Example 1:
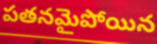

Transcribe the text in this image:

పతనమైపోయిన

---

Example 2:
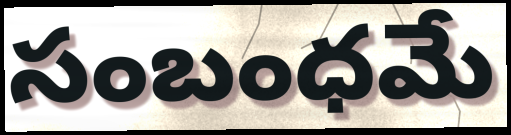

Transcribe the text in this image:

సంబంధమే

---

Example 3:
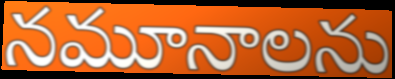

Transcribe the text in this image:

నమూనాలను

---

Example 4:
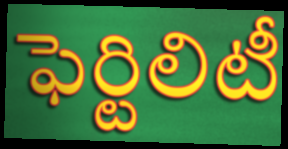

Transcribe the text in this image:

ఫెర్టిలిటీ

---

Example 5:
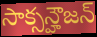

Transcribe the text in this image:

సాక్సన్హౌజన్